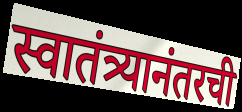
स्वातंत्र्यानंतरची